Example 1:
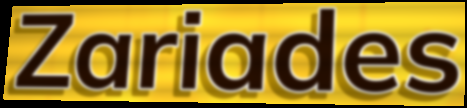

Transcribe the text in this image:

Zariades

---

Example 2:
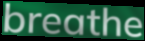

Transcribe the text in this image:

breathe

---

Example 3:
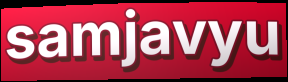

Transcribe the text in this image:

samjavyu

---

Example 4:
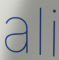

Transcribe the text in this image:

ali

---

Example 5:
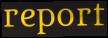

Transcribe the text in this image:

report